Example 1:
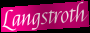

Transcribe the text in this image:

Langstroth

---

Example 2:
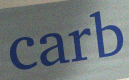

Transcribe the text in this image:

carb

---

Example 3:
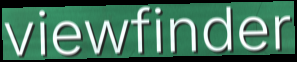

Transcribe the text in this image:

viewfinder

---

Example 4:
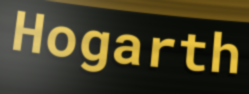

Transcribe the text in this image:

Hogarth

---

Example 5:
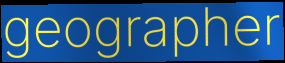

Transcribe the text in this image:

geographer